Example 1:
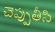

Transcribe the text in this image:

చెప్పుతీసి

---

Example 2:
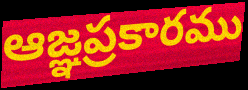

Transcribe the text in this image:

ఆజ్ఞప్రకారము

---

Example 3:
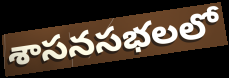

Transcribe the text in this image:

శాసనసభలలో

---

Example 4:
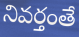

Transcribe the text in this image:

నివర్తంతే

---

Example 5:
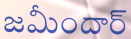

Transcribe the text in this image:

జమీందార్